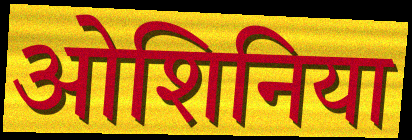
ओशिनिया